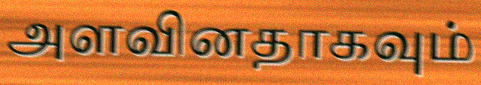
அளவினதாகவும்